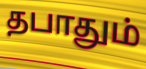
தபாதும்